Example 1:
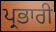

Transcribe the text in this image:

ਪ੍ਰਭਾਰੀ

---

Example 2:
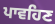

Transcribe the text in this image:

ਪਾਵਹਿਣ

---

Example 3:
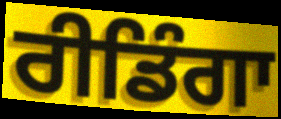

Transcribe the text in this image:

ਰੀਡਿੰਗਾ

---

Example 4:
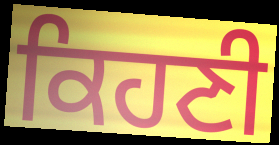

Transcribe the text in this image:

ਕਿਹਣੀ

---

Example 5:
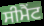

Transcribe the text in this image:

ਸੀਮੈਂਟ